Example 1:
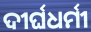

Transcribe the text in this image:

ଦୀର୍ଘଧର୍ମୀ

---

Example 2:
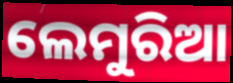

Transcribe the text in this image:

ଲେମୁରିଆ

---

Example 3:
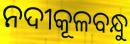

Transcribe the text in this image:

ନଦୀକୂଳବନ୍ଧୁ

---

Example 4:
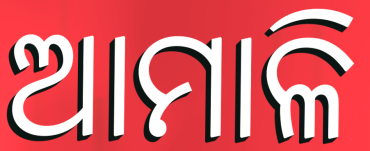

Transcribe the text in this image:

ଆମାଳି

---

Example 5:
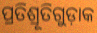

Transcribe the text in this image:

ପ୍ରତିଶ୍ରୂତିଗୁଡ଼ାକ